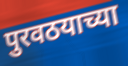
पुरवठयाच्या